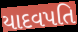
યાદવપતિ